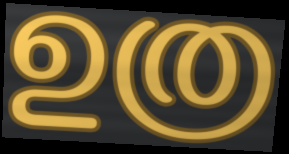
ഉത്ര